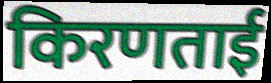
किरणताई